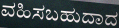
ವಹಿಸಬಹುದಾದ